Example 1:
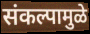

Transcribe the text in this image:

संकल्पामुळे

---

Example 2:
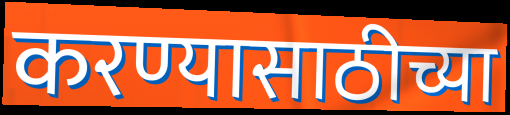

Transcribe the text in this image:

करण्यासाठीच्या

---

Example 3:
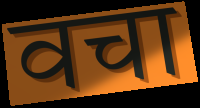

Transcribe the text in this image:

वचा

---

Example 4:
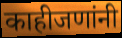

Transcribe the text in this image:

काहीजणांनी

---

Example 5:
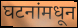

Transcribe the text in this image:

घटनांमधून